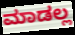
ಮಾಡಲ್ಲ